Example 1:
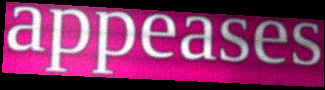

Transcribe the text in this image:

appeases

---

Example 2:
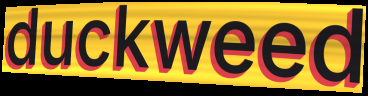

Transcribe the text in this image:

duckweed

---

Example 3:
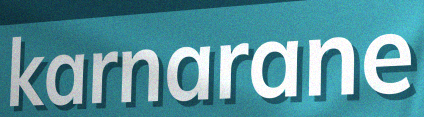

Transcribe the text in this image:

karnarane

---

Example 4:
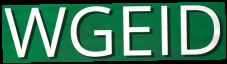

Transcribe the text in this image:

WGEID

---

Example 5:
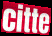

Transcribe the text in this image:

citte